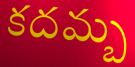
కదమ్బ